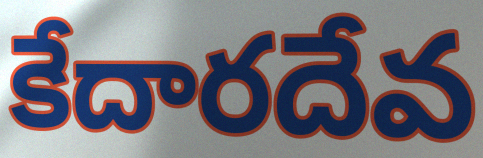
కేదారదేవ